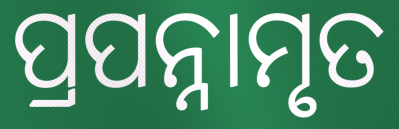
ପ୍ରପନ୍ନାମୃତ